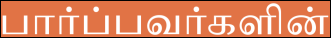
பார்ப்பவர்களின்